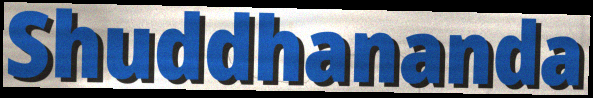
Shuddhananda